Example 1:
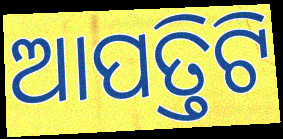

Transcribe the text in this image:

ଆପତ୍ତିଟି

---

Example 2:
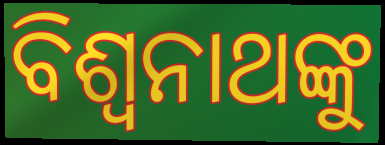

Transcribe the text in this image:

ବିଶ୍ବନାଥଙ୍କୁ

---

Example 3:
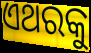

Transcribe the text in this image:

ଏଥରକୁ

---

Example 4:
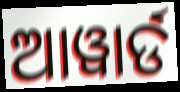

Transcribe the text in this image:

ଆୱାର୍ଡ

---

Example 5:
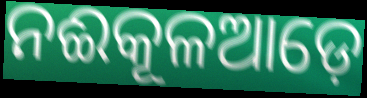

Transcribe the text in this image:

ନଈକୂଳଆଡ଼େ